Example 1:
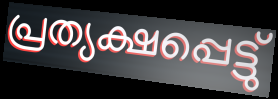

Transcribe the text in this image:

പ്രത്യക്ഷപ്പെട്ടു്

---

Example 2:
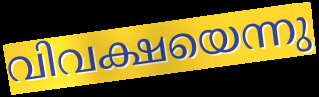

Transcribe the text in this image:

വിവക്ഷയെന്നു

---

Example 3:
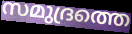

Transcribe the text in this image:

സമുദ്രത്തെ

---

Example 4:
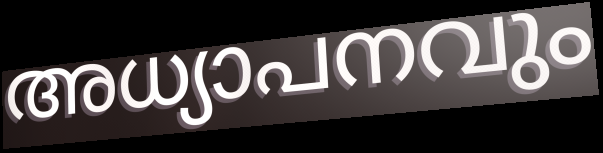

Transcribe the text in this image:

അധ്യാപനവും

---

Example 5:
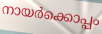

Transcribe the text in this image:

നായർക്കൊപ്പം